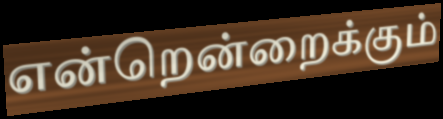
என்றென்றைக்கும்